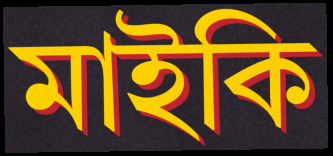
মাইকি